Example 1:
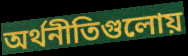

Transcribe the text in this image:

অর্থনীতিগুলোয়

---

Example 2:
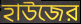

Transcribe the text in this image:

হাউজের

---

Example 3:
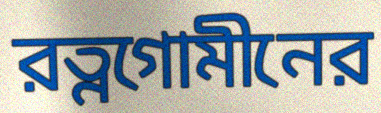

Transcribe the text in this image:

রত্নগোমীনের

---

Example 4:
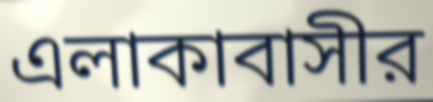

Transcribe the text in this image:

এলাকাবাসীর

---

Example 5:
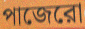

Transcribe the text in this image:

পাজেরো